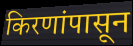
किरणांपासून